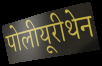
पोलीयूरीथेन